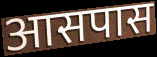
आसपास